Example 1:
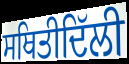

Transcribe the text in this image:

ਸਥਿਤੀਦਿੱਲੀ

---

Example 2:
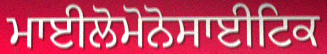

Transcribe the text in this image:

ਮਾਈਲੋਮੋਨੋਸਾਈਟਿਕ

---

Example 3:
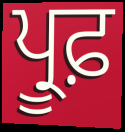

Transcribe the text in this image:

ਪ੍ਰੂਫ਼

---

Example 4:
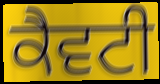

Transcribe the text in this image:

ਕੈਵਟੀ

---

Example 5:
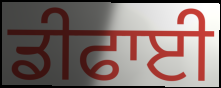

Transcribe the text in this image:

ਡੀਫਾਈ